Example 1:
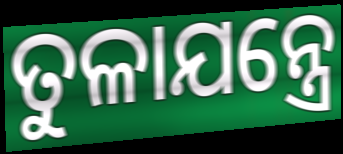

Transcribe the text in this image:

ତୁଳାଯନ୍ତ୍ରେ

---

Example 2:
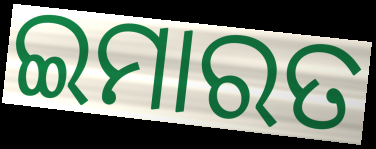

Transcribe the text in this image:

ଇମାରତ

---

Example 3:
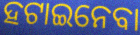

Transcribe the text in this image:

ହଟାଇନେବା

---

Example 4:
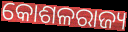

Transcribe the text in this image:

କୋଶଳରାଜ୍ୟ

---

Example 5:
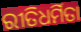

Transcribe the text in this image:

ରୀତିଧର୍ମିତା